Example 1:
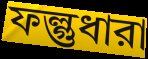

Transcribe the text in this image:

ফল্গুধারা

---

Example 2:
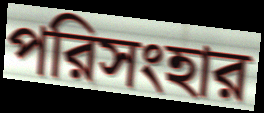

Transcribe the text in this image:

পরিসংহার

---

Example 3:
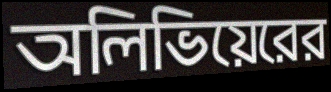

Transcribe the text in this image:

অলিভিয়েরের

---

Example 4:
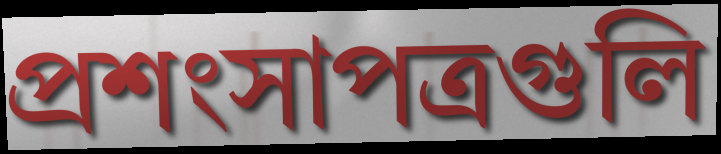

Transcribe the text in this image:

প্রশংসাপত্রগুলি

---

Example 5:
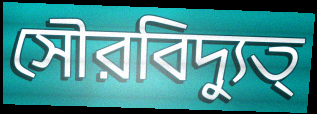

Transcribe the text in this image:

সৌরবিদ্যুত্